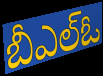
బీఎల్ఓ